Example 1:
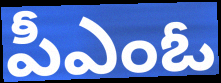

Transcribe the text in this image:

పీఎంఓ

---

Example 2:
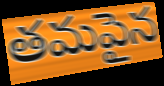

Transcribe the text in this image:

తమపైన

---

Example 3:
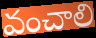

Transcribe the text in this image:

వంచాలి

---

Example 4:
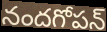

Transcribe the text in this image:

నందగోపన్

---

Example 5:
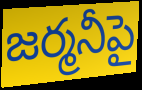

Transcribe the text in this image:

జర్మనీపై